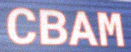
CBAM